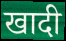
खादी